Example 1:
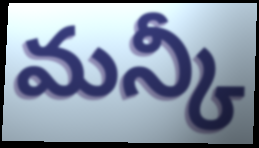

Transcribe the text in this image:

మన్కీ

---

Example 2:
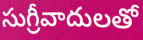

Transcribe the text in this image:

సుగ్రీవాదులతో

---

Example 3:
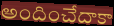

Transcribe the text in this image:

అందించేదాకా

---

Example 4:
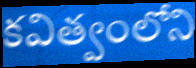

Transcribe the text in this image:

కవిత్వంలోని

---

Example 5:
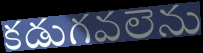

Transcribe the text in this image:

కడుగవలెను